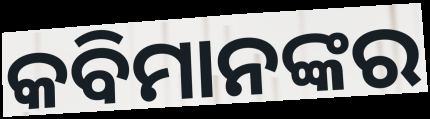
କବିମାନଙ୍କର